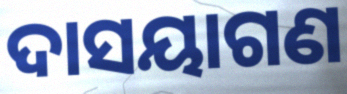
ଦାସୟାଗଣ